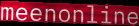
meenonline